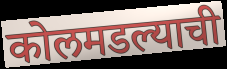
कोलमडल्याची